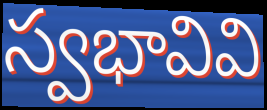
స్వభావివి